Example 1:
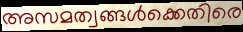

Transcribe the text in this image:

അസമത്വങ്ങൾക്കെതിരെ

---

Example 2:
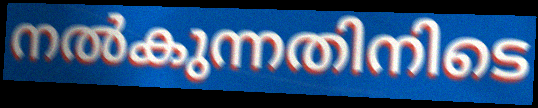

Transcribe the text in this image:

നൽകുന്നതിനിടെ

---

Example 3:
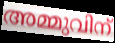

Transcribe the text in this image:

അമ്മുവിന്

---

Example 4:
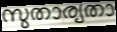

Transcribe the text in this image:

സുതാര്യതാ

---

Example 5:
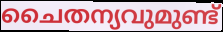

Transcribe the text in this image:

ചൈതന്യവുമുണ്ട്